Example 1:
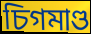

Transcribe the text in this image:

চিগমাণ্ড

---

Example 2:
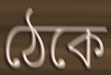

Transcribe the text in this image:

ঠেকে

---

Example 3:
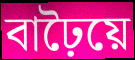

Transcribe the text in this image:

বাঢ়ৈয়ে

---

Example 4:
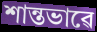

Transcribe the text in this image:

শান্তভাৱে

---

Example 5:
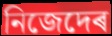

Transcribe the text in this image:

নিজেদেৰ